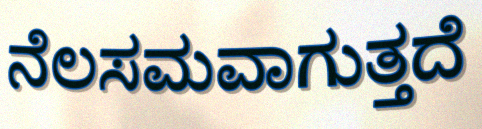
ನೆಲಸಮವಾಗುತ್ತದೆ